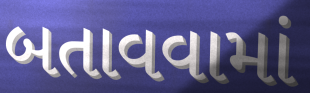
બતાવવામાં